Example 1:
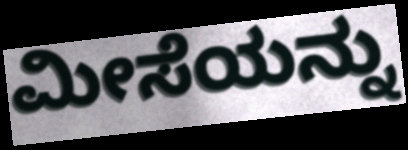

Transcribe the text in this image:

ಮೀಸೆಯನ್ನು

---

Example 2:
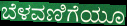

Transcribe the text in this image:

ಬೆಳವಣಿಗೆಯೂ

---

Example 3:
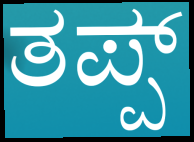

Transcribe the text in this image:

ತಪ್ಪ್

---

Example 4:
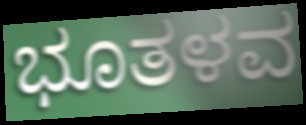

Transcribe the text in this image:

ಭೂತಳವ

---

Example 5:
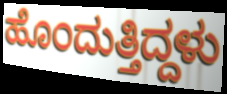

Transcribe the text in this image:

ಹೊಂದುತ್ತಿದ್ದಳು